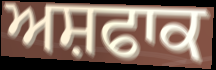
ਅਸ਼ਫਾਕ